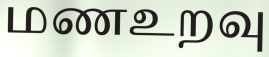
மணஉறவு